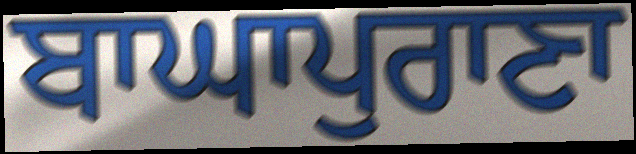
ਬਾਘਾਪੁਰਾਣਾ